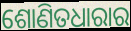
ଶୋଣିତଧାରାର